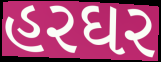
હરઘર